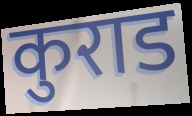
कुराड